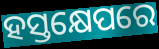
ହସ୍ତକ୍ଷେପରେ